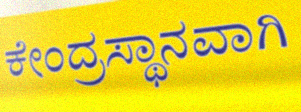
ಕೇಂದ್ರಸ್ಥಾನವಾಗಿ